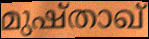
മുഷ്താഖ്